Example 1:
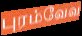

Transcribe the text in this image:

புரம்வேவ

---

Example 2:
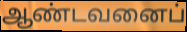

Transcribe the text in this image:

ஆண்டவனைப்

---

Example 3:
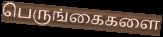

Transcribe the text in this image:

பெருங்கைகளை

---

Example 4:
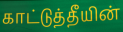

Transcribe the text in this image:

காட்டுத்தீயின்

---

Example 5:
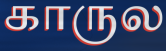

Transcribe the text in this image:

காருல